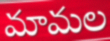
మామల